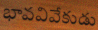
భావవివేకుడు